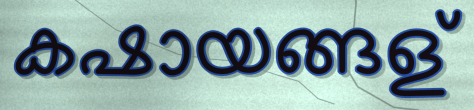
കഷായങ്ങള്